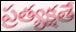
ప్రత్యక్షతే